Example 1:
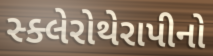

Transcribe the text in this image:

સ્ક્લેરોથેરાપીનો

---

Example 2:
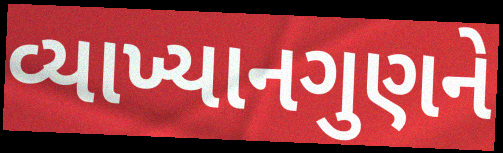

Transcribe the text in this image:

વ્યાખ્યાનગુણને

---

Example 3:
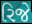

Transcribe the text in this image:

રિજે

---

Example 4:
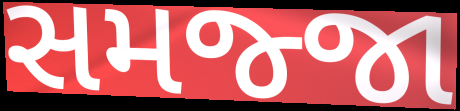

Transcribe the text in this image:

સમજ્જા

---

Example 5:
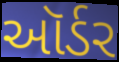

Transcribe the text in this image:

ઑર્ડર